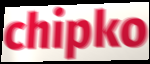
chipko